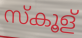
സ്കൂള്